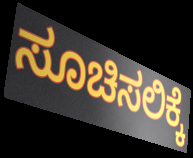
ಸೂಚಿಸಲಿಕ್ಕೆ